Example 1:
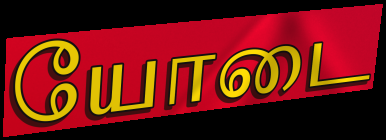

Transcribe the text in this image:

யோடை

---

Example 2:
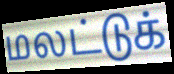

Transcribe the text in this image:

மலட்டுக்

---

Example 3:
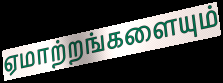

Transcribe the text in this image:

ஏமாற்றங்களையும்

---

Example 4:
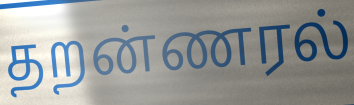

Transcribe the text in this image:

தறன்ணரல்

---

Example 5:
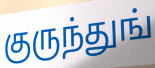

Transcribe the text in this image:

குருந்துங்